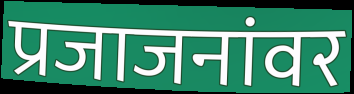
प्रजाजनांवर